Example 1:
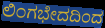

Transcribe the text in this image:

ಲಿಂಗಭೇದದಿಂದ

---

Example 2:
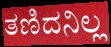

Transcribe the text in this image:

ತಣಿದನಿಲ್ಲ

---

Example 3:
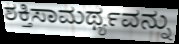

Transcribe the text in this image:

ಶಕ್ತಿಸಾಮರ್ಥ್ಯವನ್ನು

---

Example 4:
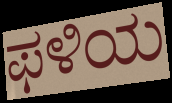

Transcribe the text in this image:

ಫಳಿಯ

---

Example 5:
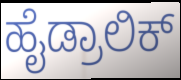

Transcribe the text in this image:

ಹೈಡ್ರಾಲಿಕ್